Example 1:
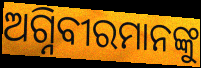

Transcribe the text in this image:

ଅଗ୍ନିବୀରମାନଙ୍କୁ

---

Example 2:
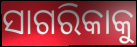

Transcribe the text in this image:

ସାଗରିକାକୁ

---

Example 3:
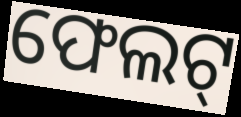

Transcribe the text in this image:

ଫେଲଟ୍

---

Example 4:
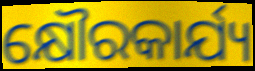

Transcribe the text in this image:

କ୍ଷୌରକାର୍ଯ୍ୟ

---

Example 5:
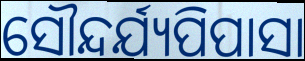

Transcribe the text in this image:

ସୌନ୍ଦର୍ଯ୍ୟପିପାସା